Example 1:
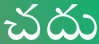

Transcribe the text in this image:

చదు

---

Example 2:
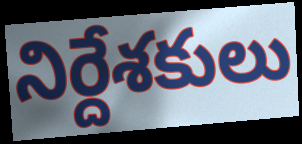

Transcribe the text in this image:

నిర్దేశకులు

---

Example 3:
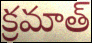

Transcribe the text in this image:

క్రమాత్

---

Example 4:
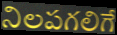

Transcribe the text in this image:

నిలపగలిగే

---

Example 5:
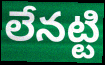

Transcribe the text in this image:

లేనట్టి